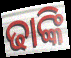
ଢାଙ୍କି